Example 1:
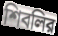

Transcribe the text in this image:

শিবলির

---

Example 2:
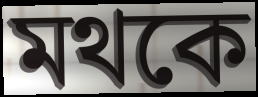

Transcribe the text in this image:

মথকে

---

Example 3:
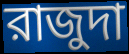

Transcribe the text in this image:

রাজুদা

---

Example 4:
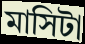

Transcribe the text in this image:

মাসিটা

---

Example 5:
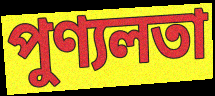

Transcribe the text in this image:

পুণ্যলতা